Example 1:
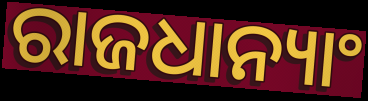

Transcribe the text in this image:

ରାଜଧାନ୍ୟାଂ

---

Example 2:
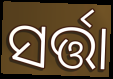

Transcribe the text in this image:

ସର୍ତ୍ତା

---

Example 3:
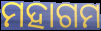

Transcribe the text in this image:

ମହାଗମ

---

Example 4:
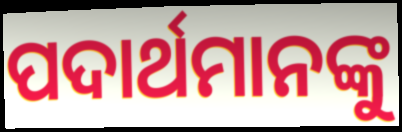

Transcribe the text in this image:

ପଦାର୍ଥମାନଙ୍କୁ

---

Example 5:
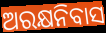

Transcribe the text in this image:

ଅରକ୍ଷନିବାସ